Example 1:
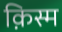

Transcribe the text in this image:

क़िस्म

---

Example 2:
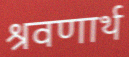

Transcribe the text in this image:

श्रवणार्थ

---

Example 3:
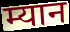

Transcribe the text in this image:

म्यान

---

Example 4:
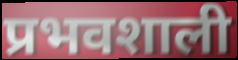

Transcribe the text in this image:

प्रभवशाली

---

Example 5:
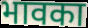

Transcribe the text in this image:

भावका